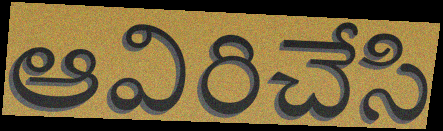
ఆవిరిచేసి